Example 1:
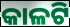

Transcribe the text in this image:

କାଳଟି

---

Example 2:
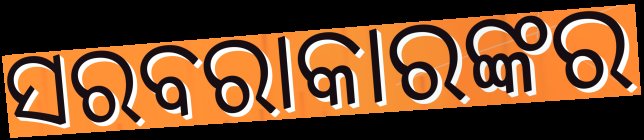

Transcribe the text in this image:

ସରବରାକାରଙ୍କର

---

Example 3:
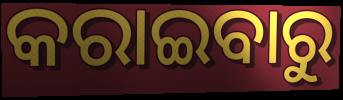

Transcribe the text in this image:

କରାଇବାରୁ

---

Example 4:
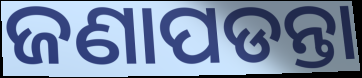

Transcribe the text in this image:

ଜଣାପଡନ୍ତା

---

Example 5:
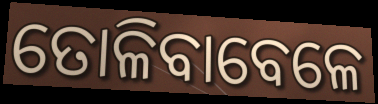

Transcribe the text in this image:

ତୋଳିବାବେଳେ